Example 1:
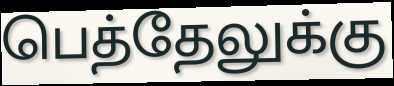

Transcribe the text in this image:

பெத்தேலுக்கு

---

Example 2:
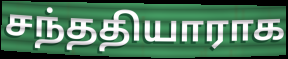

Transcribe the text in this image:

சந்ததியாராக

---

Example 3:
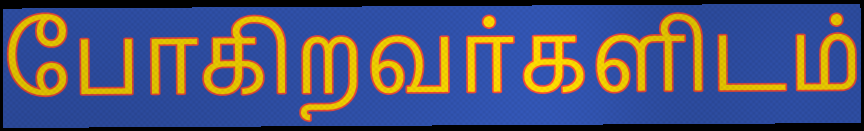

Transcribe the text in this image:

போகிறவர்களிடம்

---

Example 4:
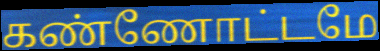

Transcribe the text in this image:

கண்ணோட்டமே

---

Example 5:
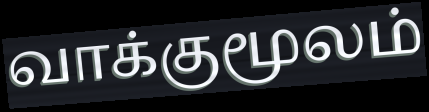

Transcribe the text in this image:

வாக்குமூலம்